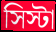
সিস্টা